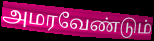
அமரவேண்டும்